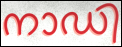
നാഡി